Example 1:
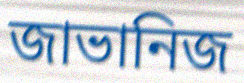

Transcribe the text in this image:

জাভানিজ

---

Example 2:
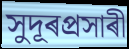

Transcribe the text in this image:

সুদূৰপ্ৰসাৰী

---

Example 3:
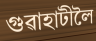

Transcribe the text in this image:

গুৱাহাটীলৈ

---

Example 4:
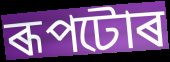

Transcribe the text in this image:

ৰূপটোৰ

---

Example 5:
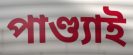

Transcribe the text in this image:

পাণ্ড্যাই